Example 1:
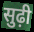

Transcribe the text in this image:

सुढ़ी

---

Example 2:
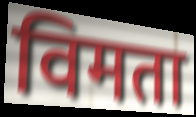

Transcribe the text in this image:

विमता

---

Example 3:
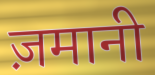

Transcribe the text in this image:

ज़मानी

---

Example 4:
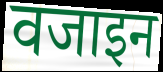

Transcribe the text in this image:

वजाइन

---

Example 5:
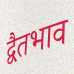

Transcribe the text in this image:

द्वैतभाव